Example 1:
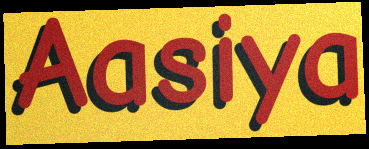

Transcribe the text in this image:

Aasiya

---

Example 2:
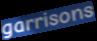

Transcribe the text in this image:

garrisons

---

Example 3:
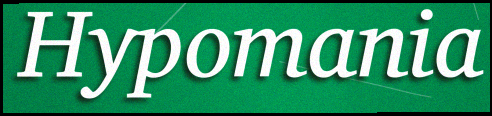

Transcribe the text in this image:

Hypomania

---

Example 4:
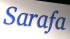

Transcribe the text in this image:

Sarafa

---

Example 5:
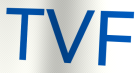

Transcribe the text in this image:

TVF